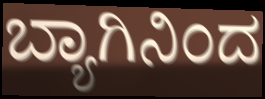
ಬ್ಯಾಗಿನಿಂದ